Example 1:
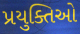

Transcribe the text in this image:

પ્રયુક્તિઓ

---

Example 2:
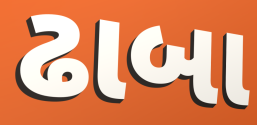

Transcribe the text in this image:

ઢાબા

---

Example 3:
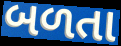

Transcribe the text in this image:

બળતા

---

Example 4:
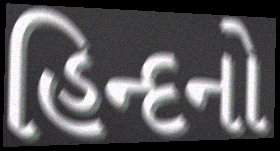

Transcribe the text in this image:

હિન્દનો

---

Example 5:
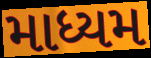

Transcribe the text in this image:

માધ્યમ